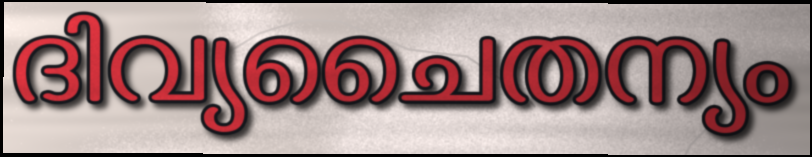
ദിവ്യചൈതന്യം